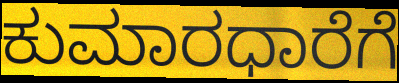
ಕುಮಾರಧಾರೆಗೆ